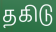
தகிடு